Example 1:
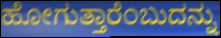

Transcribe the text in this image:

ಹೋಗುತ್ತಾರೆಂಬುದನ್ನು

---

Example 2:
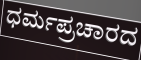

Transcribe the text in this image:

ಧರ್ಮಪ್ರಚಾರದ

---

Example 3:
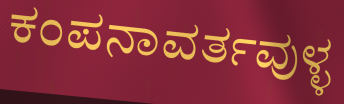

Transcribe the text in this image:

ಕಂಪನಾವರ್ತವುಳ್ಳ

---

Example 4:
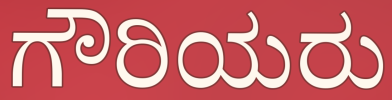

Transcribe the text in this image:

ಗೌರಿಯರು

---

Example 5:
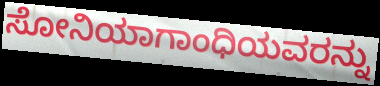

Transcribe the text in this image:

ಸೋನಿಯಾಗಾಂಧಿಯವರನ್ನು